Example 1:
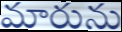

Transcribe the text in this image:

మారును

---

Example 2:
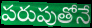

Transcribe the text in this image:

పరుపుతోనే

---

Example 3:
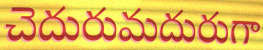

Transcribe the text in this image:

చెదురుమదురుగా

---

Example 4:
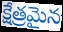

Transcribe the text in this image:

క్షేత్రమైన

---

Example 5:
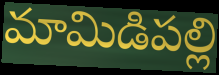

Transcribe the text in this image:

మామిడిపల్లి